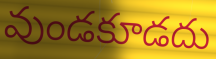
వుండకూడదు